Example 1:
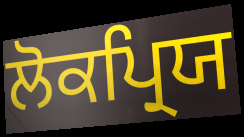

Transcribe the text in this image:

ਲੋਕਪ੍ਰਿਯ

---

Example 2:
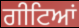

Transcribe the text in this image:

ਗੀਟਿਆਂ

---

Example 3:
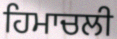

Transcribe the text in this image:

ਹਿਮਾਚਲੀ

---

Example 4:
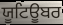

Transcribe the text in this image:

ਯੂਟਿਊਬਰ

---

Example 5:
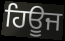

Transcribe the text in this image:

ਹਿਊਜ